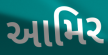
આમિર